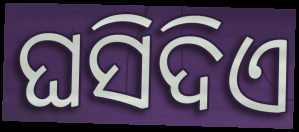
ଘସିଦିଏ